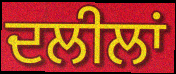
ਦਲੀਲਾਂ